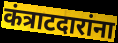
कंत्राटदारांना